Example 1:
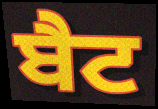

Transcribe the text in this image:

ਬੈਟ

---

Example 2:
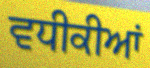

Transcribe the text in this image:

ਵਧੀਕੀਆਂ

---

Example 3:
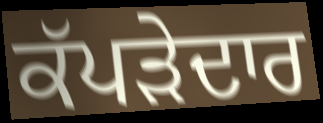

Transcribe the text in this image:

ਕੱਪੜੇਦਾਰ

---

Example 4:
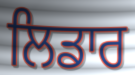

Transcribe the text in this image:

ਲਿਡਾਰ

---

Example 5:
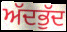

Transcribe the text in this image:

ਅੱਦਭੁੱਦ